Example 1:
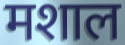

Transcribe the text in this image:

मशाल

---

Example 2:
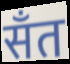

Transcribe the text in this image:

सँत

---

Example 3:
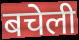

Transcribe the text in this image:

बचेली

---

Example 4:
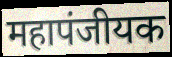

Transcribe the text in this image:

महापंजीयक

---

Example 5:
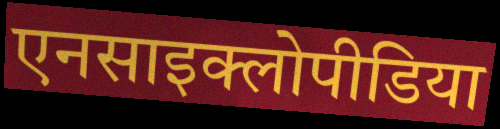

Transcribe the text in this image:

एनसाइक्लोपीडिया